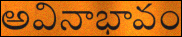
అవినాభావం